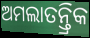
ଅମଲାତନ୍ତ୍ରିକ